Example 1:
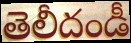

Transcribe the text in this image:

తెలీదండీ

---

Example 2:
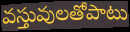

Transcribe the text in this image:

వస్తువులతోపాటు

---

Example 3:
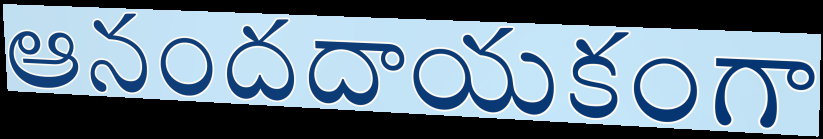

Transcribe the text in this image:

ఆనందదాయకంగా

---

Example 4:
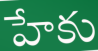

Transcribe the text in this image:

హేకు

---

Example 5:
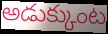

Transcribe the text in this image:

అడుక్కుంట